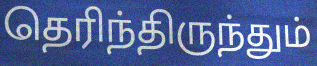
தெரிந்திருந்தும்